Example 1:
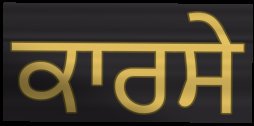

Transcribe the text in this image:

ਕਾਰਸੇ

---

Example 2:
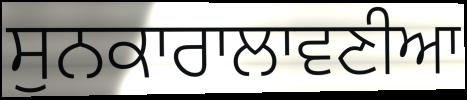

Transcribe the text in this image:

ਸੁਨਕਾਰਾਲਾਵਣੀਆ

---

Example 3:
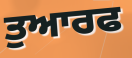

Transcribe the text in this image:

ਤੁਆਰਫ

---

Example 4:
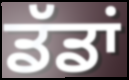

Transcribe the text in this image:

ਡੱਡਾਂ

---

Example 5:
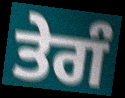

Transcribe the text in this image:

ਤੇਗੰ